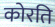
कोरति